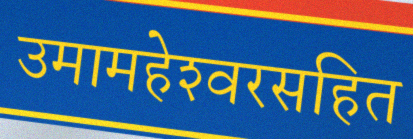
उमामहेश्वरसहित